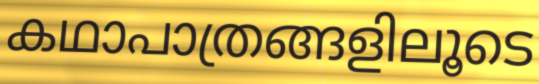
കഥാപാത്രങ്ങളിലൂടെ